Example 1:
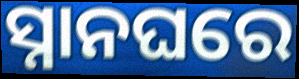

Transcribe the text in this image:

ସ୍ନାନଘରେ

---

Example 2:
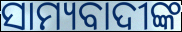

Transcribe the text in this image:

ସାମ୍ୟବାଦୀଙ୍କ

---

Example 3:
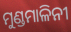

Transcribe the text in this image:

ମୁଣ୍ଡମାଳିନୀ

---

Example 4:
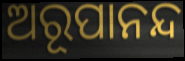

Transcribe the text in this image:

ଅରୂପାନନ୍ଦ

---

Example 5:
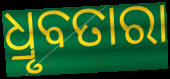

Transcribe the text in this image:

ଧ୍ରୃବତାରା